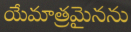
యేమాత్రమైనను